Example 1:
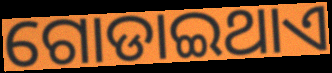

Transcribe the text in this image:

ଗୋଡାଇଥାଏ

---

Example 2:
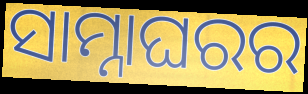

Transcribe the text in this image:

ସାମ୍ନାଘରର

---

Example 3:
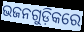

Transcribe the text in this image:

ଭଜନଗୁଡ଼ିକରେ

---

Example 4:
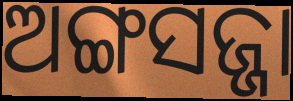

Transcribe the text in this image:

ଅଙ୍ଗସଜ୍ଜା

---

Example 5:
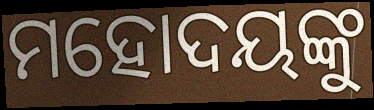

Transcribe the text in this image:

ମହୋଦୟଙ୍କୁ